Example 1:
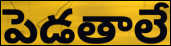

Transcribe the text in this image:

పెడతాలే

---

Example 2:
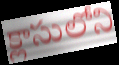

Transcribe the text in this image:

క్లాసులోని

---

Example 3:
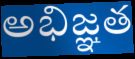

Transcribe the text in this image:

అభిజ్ఞత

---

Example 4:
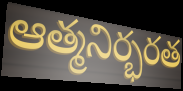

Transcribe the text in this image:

ఆత్మనిర్భరత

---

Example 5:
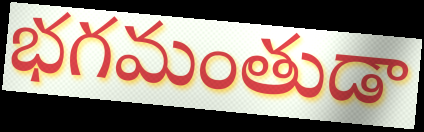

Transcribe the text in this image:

భగమంతుడా